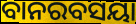
ବାନରବସୟା